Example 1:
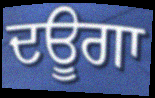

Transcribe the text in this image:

ਦਊਗਾ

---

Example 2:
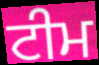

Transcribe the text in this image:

ਟੀਮ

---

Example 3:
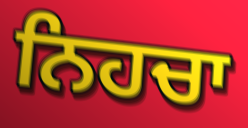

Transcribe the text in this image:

ਨਿਹਚਾ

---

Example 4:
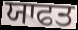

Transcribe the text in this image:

ਯਾਫਤ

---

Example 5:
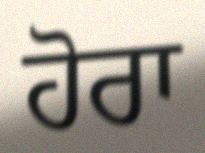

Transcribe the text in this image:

ਹੋਰਾ